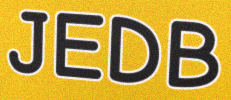
JEDB